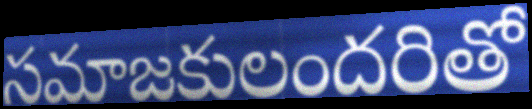
సమాజకులందరితో